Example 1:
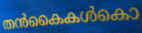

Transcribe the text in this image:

തൻകൈകൾകൊ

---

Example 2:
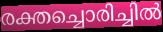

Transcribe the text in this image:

രക്തച്ചൊരിച്ചിൽ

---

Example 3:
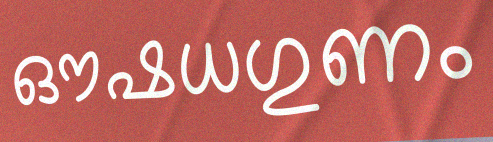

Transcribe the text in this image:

ഔഷധഗുണം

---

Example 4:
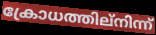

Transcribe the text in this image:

ക്രോധത്തില്നിന്ന്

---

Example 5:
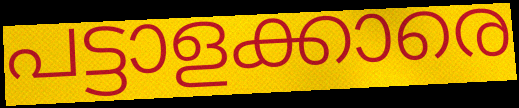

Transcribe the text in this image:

പട്ടാളക്കാരെ